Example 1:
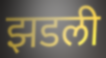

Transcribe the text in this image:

झडली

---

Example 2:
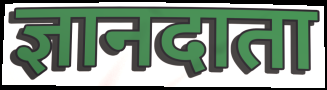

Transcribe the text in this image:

ज्ञानदाता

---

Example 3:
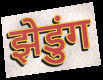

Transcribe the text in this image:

झेडुंग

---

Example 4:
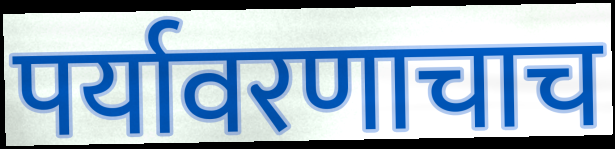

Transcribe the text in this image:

पर्यावरणाचाच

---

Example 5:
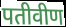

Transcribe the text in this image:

पतीवीण